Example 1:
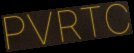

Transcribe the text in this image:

PVRTC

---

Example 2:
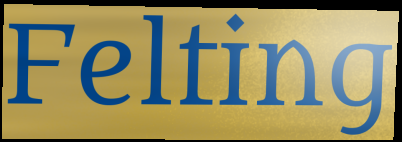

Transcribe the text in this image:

Felting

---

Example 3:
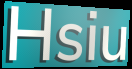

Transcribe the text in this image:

Hsiu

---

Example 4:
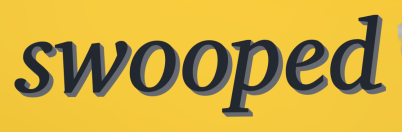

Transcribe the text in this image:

swooped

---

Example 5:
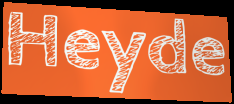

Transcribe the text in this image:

Heyde